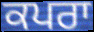
ਕਪਰਾ